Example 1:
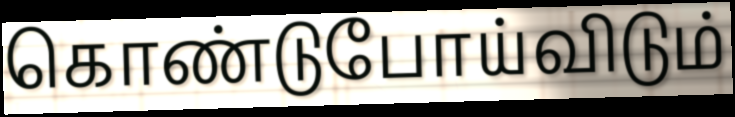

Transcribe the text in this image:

கொண்டுபோய்விடும்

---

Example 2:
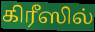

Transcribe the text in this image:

கிரீஸில்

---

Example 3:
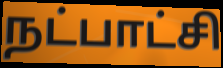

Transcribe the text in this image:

நட்பாட்சி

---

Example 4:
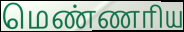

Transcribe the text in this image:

மெண்ணரிய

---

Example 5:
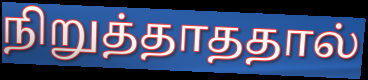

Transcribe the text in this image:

நிறுத்தாததால்